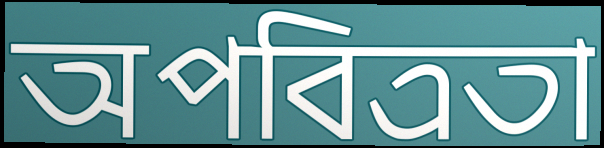
অপবিত্রতা